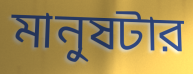
মানুষটার